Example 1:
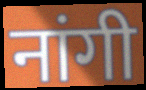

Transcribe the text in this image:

नांगी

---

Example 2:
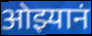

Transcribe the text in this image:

ओझ्यानं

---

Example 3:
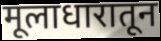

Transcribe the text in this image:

मूलाधारातून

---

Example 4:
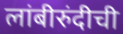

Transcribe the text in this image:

लांबीरुंदीची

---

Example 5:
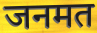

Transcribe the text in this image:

जनमत